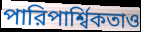
পারিপার্শ্বিকতাও